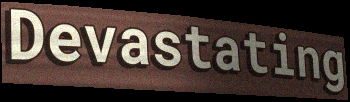
Devastating